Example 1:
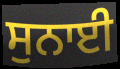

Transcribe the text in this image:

ਸੁਨਾਈ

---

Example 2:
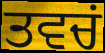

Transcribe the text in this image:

ਤਵਚਂ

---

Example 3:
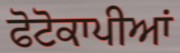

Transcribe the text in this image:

ਫੋਟੋਕਾਪੀਆਂ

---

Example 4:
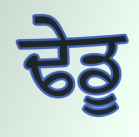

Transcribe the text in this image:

ਢੇਡੂ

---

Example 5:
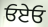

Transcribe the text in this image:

ਓਏਓ